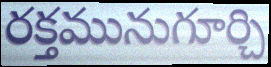
రక్తమునుగూర్చి